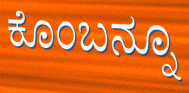
ಕೊಂಬನ್ನೂ